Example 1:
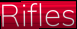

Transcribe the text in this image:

Rifles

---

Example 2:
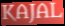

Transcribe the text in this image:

KAJAL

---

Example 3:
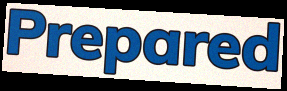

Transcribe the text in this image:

Prepared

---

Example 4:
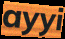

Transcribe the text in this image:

ayyi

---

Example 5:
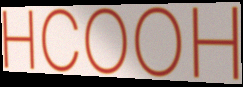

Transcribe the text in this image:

HCOOH